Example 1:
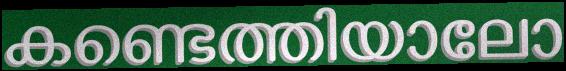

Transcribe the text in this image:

കണ്ടെത്തിയാലോ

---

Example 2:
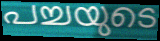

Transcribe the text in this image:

പച്ചയുടെ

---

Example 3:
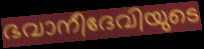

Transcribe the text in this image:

ഭവാനീദേവിയുടെ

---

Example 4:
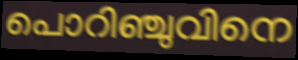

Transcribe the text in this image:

പൊറിഞ്ചുവിനെ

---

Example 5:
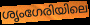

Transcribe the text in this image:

ശൃംഗേരിയിലെ